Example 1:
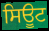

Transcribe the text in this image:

ਸਿਊਟ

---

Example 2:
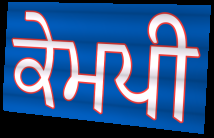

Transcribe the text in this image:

ਕੇਮਪੀ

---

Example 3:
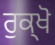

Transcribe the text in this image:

ਰੁਕ੍ਖੋ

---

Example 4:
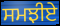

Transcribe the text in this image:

ਸਮਝੀਏ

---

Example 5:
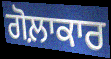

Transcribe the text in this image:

ਗੋਲ਼ਾਕਾਰ